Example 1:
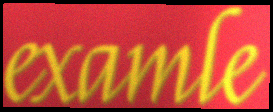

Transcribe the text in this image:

examle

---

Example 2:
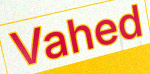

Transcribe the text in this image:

Vahed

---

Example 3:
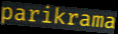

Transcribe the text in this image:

parikrama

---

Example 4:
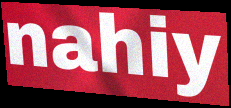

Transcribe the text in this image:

nahiy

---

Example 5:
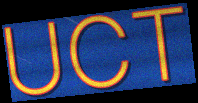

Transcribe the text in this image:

UCT